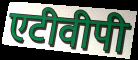
एटीवीपी